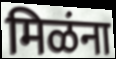
मिळंना